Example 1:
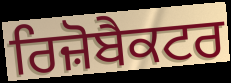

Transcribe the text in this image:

ਰਿਜ਼ੋਬੈਕਟਰ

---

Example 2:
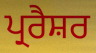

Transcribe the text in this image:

ਪ੍ਰਰੈਸ਼ਰ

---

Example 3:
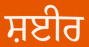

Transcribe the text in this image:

ਸ਼ਈਰ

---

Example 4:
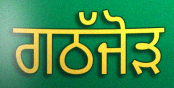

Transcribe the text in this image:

ਗਠੱਜੋੜ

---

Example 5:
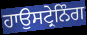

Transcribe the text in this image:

ਹਾਉਸਟ੍ਰੇਨਿੰਗ